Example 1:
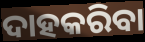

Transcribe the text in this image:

ଦାହକରିବା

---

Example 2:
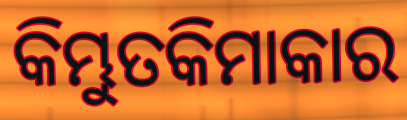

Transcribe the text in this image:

କିମ୍ଭୁତକିମାକାର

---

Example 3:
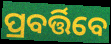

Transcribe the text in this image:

ପ୍ରବର୍ତ୍ତିବେ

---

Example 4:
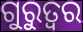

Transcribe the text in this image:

ଗୁରୁତ୍ବର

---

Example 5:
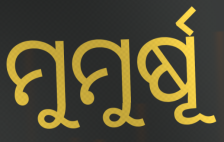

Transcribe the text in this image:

ମୁମୁର୍ଷୂ